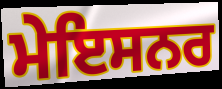
ਮੇਇਸਨਰ